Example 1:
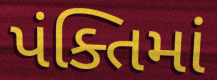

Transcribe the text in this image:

પંક્તિમાં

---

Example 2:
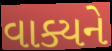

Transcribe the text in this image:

વાક્યને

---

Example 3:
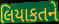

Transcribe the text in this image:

લિયાકતને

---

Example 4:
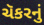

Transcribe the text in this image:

ચૅકરનું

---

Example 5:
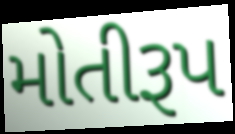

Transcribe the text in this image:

મોતીરૂપ